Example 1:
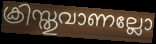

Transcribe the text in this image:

ക്രിസ്തുവാണല്ലോ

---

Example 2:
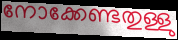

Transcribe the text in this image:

നോക്കേണ്ടതുള്ളു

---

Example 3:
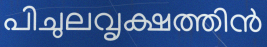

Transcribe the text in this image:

പിചുലവൃക്ഷത്തിൻ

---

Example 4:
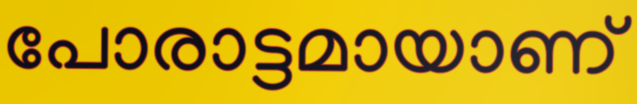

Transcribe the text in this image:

പോരാട്ടമായാണ്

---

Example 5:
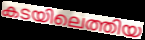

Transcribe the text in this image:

കടയിലെത്തിയ